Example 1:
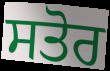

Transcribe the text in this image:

ਸਤੋਰ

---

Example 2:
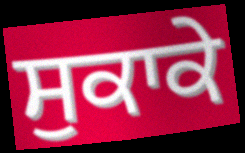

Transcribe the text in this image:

ਸੁਕਾਕੇ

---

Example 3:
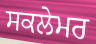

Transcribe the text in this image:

ਸਕਲੇਮਰ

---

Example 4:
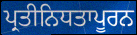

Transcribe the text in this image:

ਪ੍ਰਤੀਨਿਧਤਾਪੂਰਨ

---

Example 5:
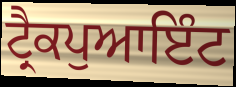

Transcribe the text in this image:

ਟ੍ਰੈਕਪੁਆਇੰਟ